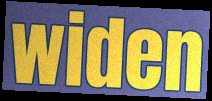
widen